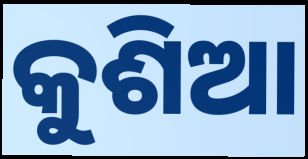
କୁଶିଆ